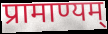
प्रामाण्यम्